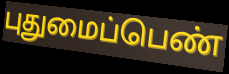
புதுமைப்பெண்